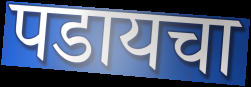
पडायचा